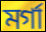
মৰ্গা